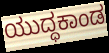
ಯುದ್ಧಕಾಂಡ